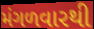
મંગળવારથી